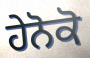
ਹੇਨੋਕੋ